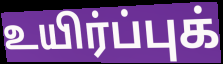
உயிர்ப்புக்